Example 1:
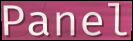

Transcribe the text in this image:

Panel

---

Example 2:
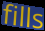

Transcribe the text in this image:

fills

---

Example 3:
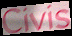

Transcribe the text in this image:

Civis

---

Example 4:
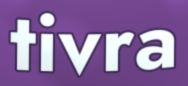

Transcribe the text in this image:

tivra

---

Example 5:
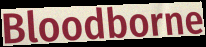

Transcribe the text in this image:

Bloodborne